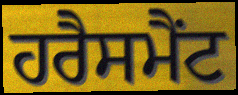
ਹਰੈਸਮੈਂਟ